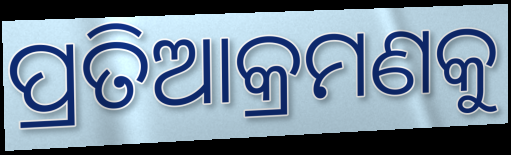
ପ୍ରତିଆକ୍ରମଣକୁ